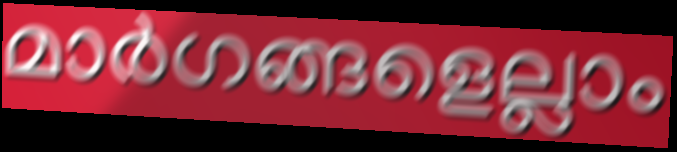
മാർഗങ്ങളെല്ലാം